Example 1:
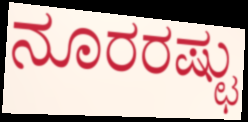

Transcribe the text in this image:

ನೂರರಷ್ಟು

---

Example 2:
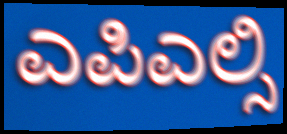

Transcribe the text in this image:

ಎಪಿಎಲ್ಸಿ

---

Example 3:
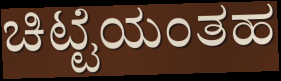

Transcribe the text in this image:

ಚಿಟ್ಟೆಯಂತಹ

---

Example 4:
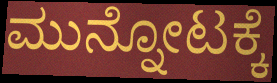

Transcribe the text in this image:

ಮುನ್ನೋಟಕ್ಕೆ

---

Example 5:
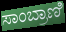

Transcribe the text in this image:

ಸಾಂಬ್ರಾಣಿ